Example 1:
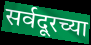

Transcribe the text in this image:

सर्वदूरच्या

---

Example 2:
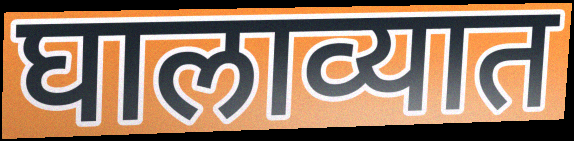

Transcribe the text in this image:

घालाव्यात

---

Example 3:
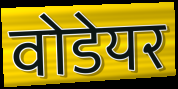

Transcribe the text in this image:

वोडेयर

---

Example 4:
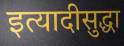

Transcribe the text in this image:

इत्यादीसुद्धा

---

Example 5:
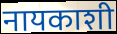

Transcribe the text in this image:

नायकाशी